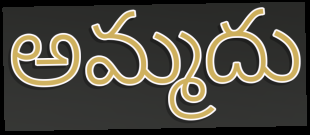
అమ్మదు